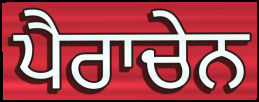
ਪੈਰਾਚੇਨ